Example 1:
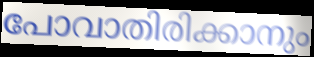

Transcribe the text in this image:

പോവാതിരിക്കാനും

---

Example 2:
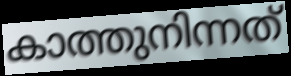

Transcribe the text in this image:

കാത്തുനിന്നത്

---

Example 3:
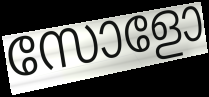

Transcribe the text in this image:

സോളോ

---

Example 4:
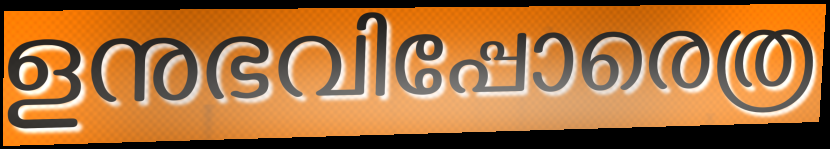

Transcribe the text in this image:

ളനുഭവിപ്പോരെത്ര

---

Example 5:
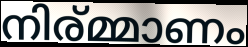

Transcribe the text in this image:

നിര്മ്മാണം